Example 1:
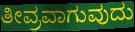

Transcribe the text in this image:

ತೀವ್ರವಾಗುವುದು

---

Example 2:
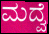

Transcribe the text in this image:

ಮದ್ವೆ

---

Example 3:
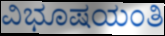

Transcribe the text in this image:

ವಿಭೂಷಯಂತಿ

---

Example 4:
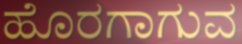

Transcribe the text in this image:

ಹೊರಗಾಗುವ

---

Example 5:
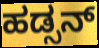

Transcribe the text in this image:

ಹಡ್ಸನ್